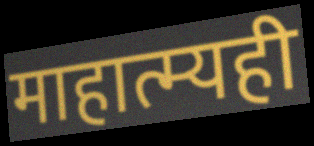
माहात्म्यही